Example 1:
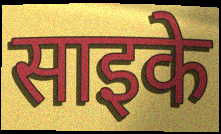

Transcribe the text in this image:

साइके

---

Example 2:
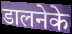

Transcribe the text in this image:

डालनेके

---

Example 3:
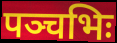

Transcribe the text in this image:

पञ्चभिः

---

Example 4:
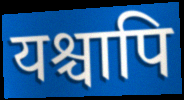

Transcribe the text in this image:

यश्चापि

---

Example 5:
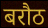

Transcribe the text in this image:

बरौठ